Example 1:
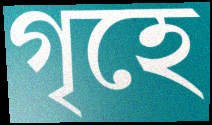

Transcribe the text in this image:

গৃহে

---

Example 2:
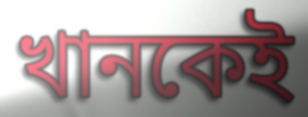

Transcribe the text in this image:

খানকেই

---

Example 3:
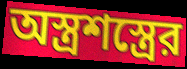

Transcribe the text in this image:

অস্ত্রশস্ত্রের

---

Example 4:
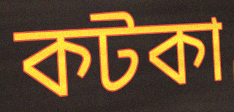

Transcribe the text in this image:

কটকা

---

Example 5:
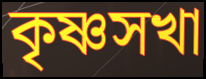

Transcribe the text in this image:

কৃষ্ণসখা